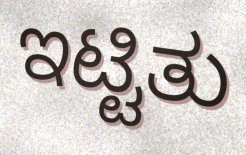
ಇಟ್ಟಿತು